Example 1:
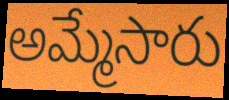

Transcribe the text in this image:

అమ్మేసారు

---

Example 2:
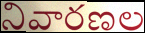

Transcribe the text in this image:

నివారణల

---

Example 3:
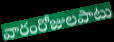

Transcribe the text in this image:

వారంరోజులపాటు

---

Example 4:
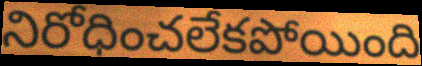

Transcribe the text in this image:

నిరోధించలేకపోయింది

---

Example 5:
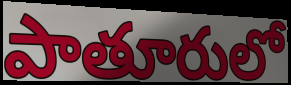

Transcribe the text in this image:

పాతూరులో